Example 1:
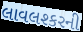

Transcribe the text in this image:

લાવલશ્કરની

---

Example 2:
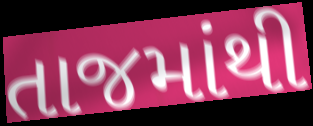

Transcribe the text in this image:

તાજમાંથી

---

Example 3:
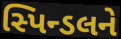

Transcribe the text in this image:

સ્પિન્ડલને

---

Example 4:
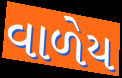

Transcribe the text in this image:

વાળેય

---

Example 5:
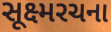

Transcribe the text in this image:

સૂક્ષ્મરચના